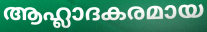
ആഹ്ലാദകരമായ